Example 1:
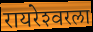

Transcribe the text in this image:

रायरेश्वरला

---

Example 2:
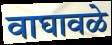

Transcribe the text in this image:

वाघावळे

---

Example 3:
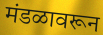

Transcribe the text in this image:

मंडळावरून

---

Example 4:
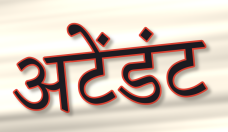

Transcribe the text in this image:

अटेंडंट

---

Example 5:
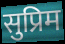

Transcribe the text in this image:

सुप्रिम